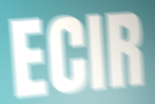
ECIR